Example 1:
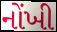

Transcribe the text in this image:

નોંખી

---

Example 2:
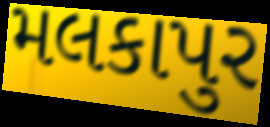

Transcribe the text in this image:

મલકાપુર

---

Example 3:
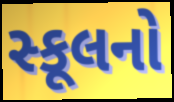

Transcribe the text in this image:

સ્કૂલનો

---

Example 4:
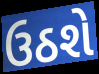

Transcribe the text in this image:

ઉઠશે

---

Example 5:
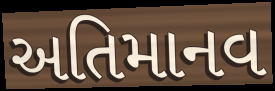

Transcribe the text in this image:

અતિમાનવ